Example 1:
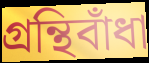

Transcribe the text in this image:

গ্রন্থিবাঁধা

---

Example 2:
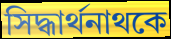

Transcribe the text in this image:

সিদ্ধার্থনাথকে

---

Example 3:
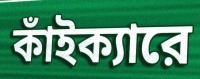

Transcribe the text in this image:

কাঁইক্যারে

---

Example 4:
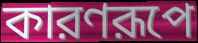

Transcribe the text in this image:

কারণরূপে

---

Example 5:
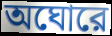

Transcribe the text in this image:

অঘোরে